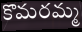
కొమరమ్మ